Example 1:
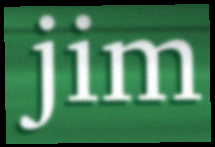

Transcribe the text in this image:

jim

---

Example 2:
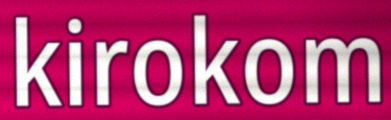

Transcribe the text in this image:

kirokom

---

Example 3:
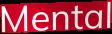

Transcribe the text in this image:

Mental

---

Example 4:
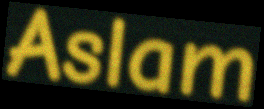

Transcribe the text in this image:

Aslam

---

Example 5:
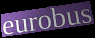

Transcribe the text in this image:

eurobus